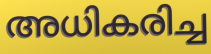
അധികരിച്ച